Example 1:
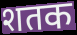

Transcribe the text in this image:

शतक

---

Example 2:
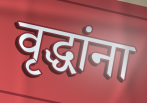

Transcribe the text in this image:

वृद्धांना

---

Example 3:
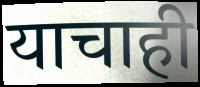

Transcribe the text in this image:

याचाही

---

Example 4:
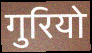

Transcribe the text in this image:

गुरियो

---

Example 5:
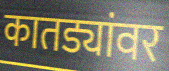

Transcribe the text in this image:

कातड्यांवर